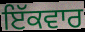
ਇੱਕਵਾਰ